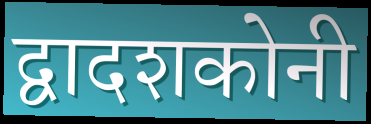
द्वादशकोनी